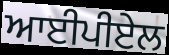
ਆਈਪੀਏਲ